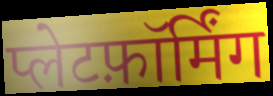
प्लेटफ़ॉर्मिंग